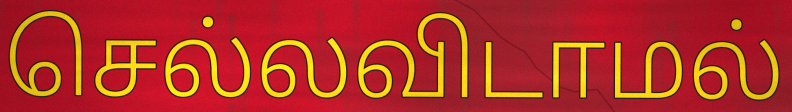
செல்லவிடாமல்